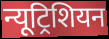
न्यूट्रिशियन